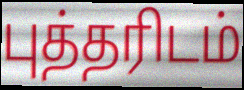
புத்தரிடம்